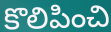
కొలిపించి